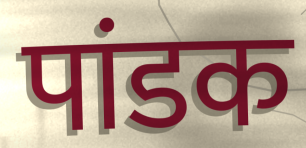
पांडक